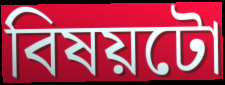
বিষয়টো